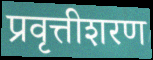
प्रवृत्तीशरण